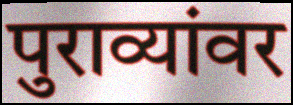
पुराव्यांवर